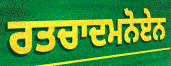
ਰਤਚਾਦਮਨੋਏਨ